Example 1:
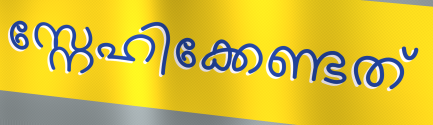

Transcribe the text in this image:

സ്നേഹിക്കേണ്ടത്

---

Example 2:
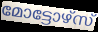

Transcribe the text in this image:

മോട്ടോഴ്സ്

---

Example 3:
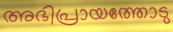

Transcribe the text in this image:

അഭിപ്രായത്തോടു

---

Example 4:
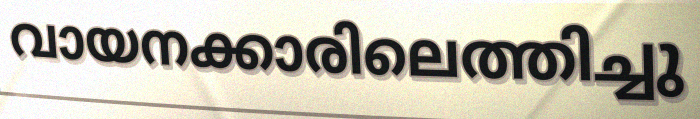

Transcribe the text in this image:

വായനക്കാരിലെത്തിച്ചു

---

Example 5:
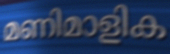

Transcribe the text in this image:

മണിമാളിക